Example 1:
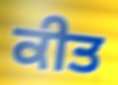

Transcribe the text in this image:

ਕੀਤ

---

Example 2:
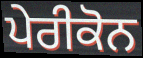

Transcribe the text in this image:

ਪੇਰੀਕੋਨ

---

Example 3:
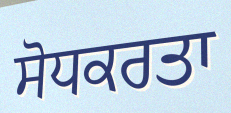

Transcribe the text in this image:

ਸੋਧਕਰਤਾ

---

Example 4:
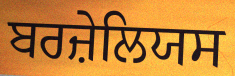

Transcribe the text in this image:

ਬਰਜ਼ੇਲਿਯਸ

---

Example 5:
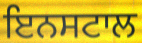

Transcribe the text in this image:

ਇਨਸਟਾਲ